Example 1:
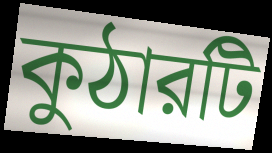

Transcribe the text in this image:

কুঠারটি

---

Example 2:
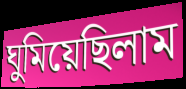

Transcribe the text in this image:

ঘুমিয়েছিলাম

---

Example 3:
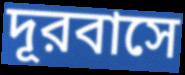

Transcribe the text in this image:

দূরবাসে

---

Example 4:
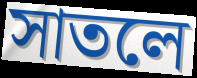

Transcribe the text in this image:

সাতলে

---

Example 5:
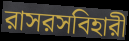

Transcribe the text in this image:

রাসরসবিহারী